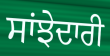
ਸਾਂਝੇਦਾਰੀ